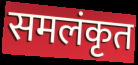
समलंकृत